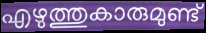
എഴുത്തുകാരുമുണ്ട്